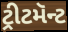
ટ્રીટમૅન્ટ